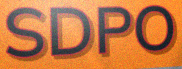
SDPO